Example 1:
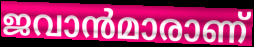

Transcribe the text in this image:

ജവാൻമാരാണ്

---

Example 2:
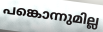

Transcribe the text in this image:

പങ്കൊന്നുമില്ല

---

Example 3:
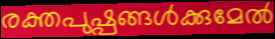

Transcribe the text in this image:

രക്തപുഷ്പങ്ങൾക്കുമേൽ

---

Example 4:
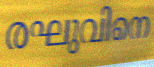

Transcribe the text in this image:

രഘുവിനെ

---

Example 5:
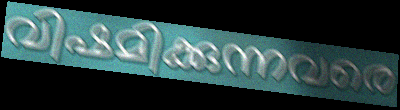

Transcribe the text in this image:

വിഷമിക്കുന്നവരെ